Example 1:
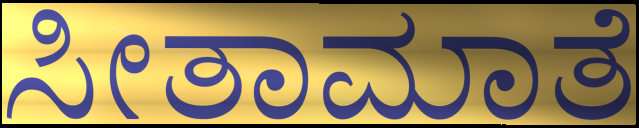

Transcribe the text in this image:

ಸೀತಾಮಾತೆ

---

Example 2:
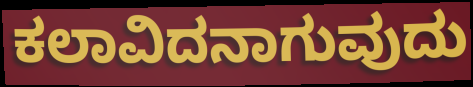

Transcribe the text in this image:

ಕಲಾವಿದನಾಗುವುದು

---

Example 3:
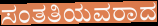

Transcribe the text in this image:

ಸಂತತಿಯವರಾದ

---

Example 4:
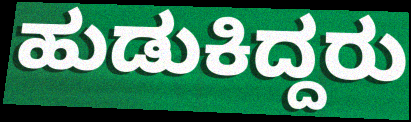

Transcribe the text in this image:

ಹುಡುಕಿದ್ದರು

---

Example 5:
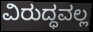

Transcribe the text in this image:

ವಿರುದ್ಧವಲ್ಲ